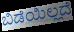
ಬಿಡೆಯಿಲ್ಲದೆ